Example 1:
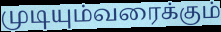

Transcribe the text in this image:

முடியும்வரைக்கும்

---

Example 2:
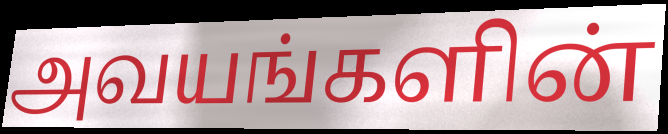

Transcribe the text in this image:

அவயங்களின்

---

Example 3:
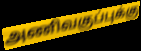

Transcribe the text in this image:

அணிவகுப்புக்கு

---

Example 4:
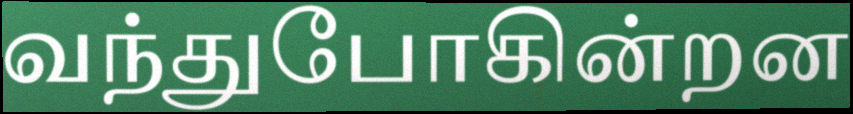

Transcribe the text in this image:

வந்துபோகின்றன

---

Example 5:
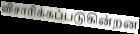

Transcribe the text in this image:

விசாரிக்கப்படுகின்றன